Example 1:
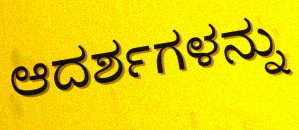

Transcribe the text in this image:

ಆದರ್ಶಗಳನ್ನು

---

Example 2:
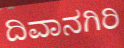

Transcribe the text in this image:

ದಿವಾನಗಿರಿ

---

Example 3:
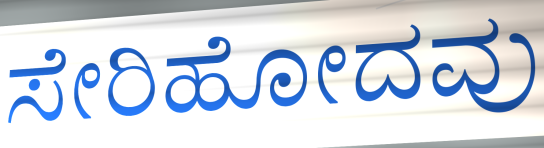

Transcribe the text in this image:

ಸೇರಿಹೋದವು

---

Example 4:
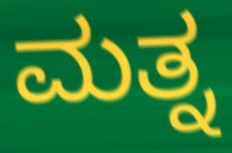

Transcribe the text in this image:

ಮತ್ನ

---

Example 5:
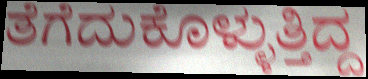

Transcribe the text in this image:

ತೆಗೆದುಕೊಳ್ಳುತ್ತಿದ್ದ